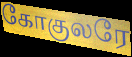
கோகுலரே